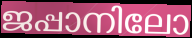
ജപ്പാനിലോ